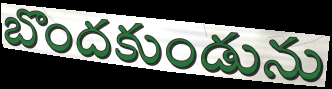
బొందకుండును